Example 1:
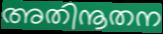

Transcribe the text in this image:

അതിനൂതന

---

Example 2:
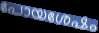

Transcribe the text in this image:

പോയശേഷം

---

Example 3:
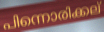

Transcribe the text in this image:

പിന്നൊരിക്കല്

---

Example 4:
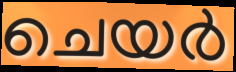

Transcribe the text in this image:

ചെയർ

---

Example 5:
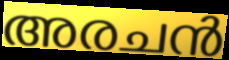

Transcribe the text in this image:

അരചൻ